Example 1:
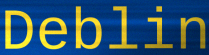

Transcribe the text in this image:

Deblin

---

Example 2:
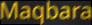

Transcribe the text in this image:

Maqbara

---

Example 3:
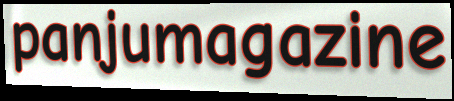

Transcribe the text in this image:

panjumagazine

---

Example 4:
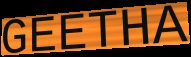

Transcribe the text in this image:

GEETHA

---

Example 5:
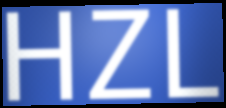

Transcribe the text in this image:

HZL